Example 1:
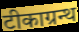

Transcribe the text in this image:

टीकाग्रन्थ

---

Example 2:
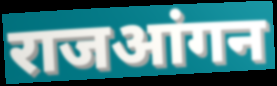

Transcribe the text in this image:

राजआंगन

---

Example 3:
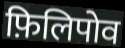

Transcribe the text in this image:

फ़िलिपोव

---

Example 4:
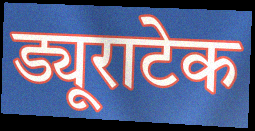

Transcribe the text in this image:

ड्यूराटेक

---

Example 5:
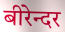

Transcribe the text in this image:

बीरेन्दर